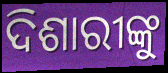
ଦିଶାରୀଙ୍କୁ